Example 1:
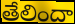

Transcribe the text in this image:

తేలిందా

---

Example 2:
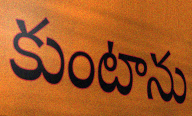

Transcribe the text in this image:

కుంటాను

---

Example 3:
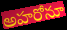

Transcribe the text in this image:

అహరోనూ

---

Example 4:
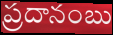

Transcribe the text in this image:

ప్రదానంబు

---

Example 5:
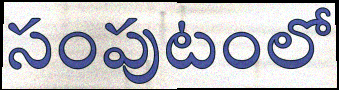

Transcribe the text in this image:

సంపుటంలో